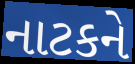
નાટકને